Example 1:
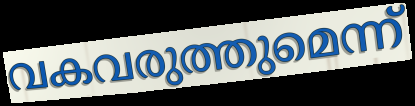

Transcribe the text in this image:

വകവരുത്തുമെന്ന്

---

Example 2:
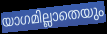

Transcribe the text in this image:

യാഗമില്ലാതെയും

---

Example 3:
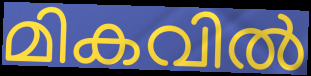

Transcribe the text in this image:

മികവിൽ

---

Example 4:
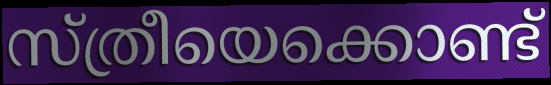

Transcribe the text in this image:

സ്ത്രീയെക്കൊണ്ട്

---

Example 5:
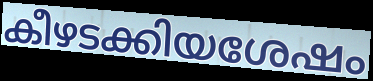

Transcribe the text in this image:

കീഴടക്കിയശേഷം